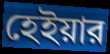
হেইয়ার